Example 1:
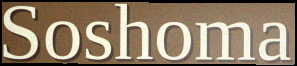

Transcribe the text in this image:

Soshoma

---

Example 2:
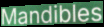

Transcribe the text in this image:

Mandibles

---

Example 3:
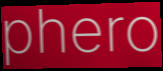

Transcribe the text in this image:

phero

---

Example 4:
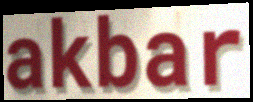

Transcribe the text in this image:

akbar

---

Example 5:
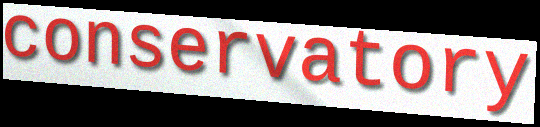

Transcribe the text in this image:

conservatory